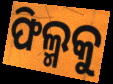
ଫିଲ୍ମକୁ